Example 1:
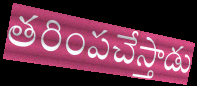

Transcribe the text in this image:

తరింపచేస్తాడు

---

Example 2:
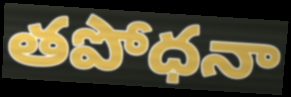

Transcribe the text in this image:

తపోధనా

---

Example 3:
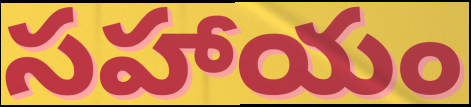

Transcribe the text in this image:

సహాయం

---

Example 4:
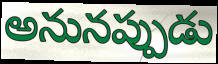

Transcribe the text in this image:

అనునప్పుడు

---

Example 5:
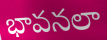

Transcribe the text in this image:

భావనలా